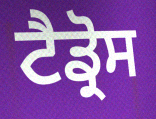
ਟੈਡ੍ਰੋਸ